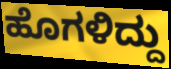
ಹೊಗಳಿದ್ದು